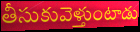
తీసుకువెళ్తుంటాడు